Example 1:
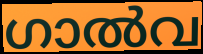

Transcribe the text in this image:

ഗാൽവ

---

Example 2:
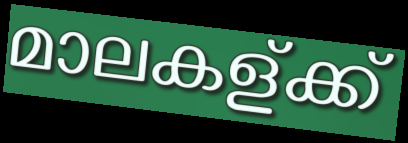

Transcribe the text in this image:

മാലകള്ക്ക്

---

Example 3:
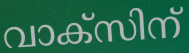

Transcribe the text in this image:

വാക്സിന്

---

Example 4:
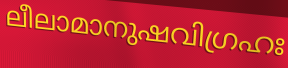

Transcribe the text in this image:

ലീലാമാനുഷവിഗ്രഹഃ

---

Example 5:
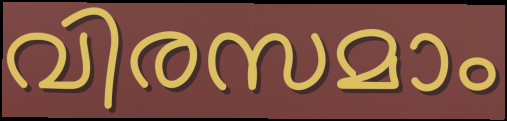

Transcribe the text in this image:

വിരസമാം